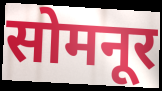
सोमनूर